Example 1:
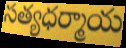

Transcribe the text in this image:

సత్యధర్మాయ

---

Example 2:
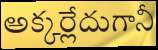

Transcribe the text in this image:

అక్కర్లేదుగానీ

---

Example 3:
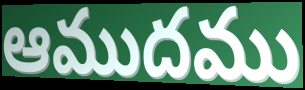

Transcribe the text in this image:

ఆముదము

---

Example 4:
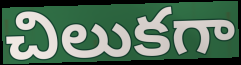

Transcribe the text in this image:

చిలుకగా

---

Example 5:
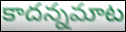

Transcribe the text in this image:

కాదన్నమాట